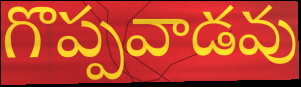
గొప్పవాడవు